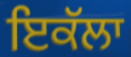
ਇਕੱਲਾ